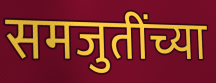
समजुतींच्या